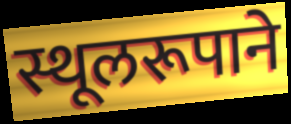
स्थूलरूपाने